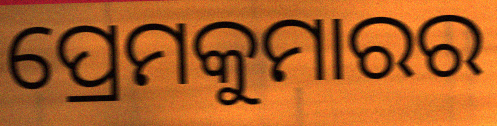
ପ୍ରେମକୁମାରର